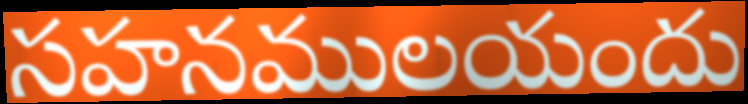
సహనములయందు